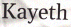
Kayeth